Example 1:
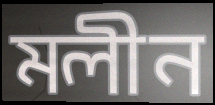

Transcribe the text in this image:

মলীন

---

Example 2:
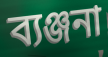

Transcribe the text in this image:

ব্যঞ্জনা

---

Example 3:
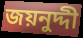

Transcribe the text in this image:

জয়নুদ্দী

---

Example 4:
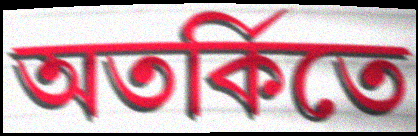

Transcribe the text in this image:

অতর্কিতে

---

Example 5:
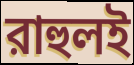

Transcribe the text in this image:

রাহুলই